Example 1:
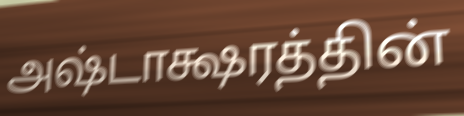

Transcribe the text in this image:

அஷ்டாக்ஷரத்தின்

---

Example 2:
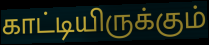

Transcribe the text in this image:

காட்டியிருக்கும்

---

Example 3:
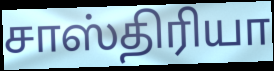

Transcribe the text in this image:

சாஸ்திரியா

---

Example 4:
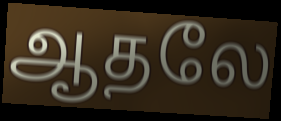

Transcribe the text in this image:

ஆதலே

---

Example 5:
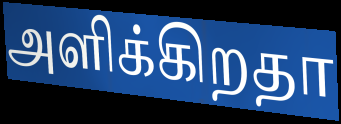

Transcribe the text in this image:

அளிக்கிறதா